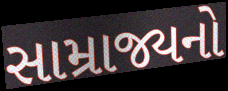
સામ્રાજ્યનો